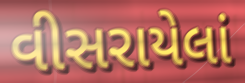
વીસરાયેલાં